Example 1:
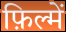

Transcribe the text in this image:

फ़िल्में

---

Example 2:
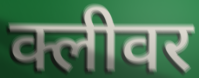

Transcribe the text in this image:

क्लीवर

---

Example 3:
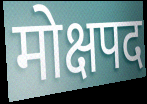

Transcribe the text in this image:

मोक्षपद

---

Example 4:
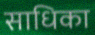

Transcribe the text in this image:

साधिका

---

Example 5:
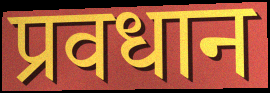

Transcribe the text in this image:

प्रवधान